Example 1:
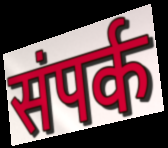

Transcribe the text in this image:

संपर्क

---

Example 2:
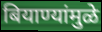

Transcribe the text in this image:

बियाण्यांमुळे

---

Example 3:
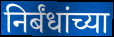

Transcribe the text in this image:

निर्बंधांच्या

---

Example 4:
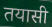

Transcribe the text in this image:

तयासी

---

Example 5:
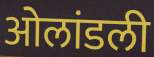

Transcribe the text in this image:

ओलांडली